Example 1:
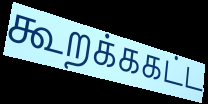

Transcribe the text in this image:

கூறக்ககட்ட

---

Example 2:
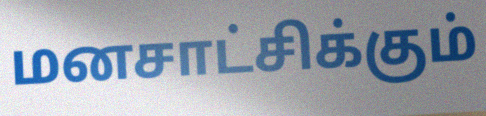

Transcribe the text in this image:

மனசாட்சிக்கும்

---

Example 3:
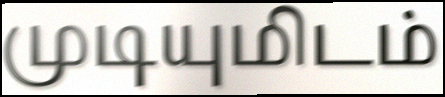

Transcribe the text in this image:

முடியுமிடம்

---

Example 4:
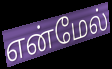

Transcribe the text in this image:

என்மேல்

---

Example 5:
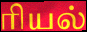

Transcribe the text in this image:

ரியல்